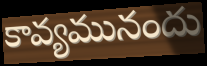
కావ్యమునందు